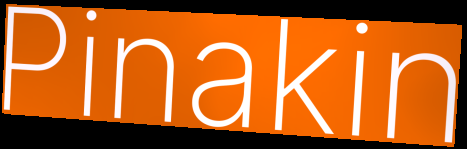
Pinakin